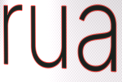
rua